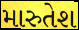
મારુતેશ